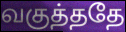
வகுத்ததே